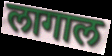
लागाल